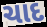
ચાદ